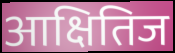
आक्षितिज